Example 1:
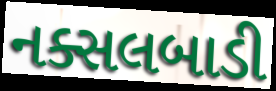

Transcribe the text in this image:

નક્સલબાડી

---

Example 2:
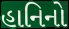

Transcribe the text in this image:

હાનિનો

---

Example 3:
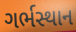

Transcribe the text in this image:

ગર્ભસ્થાન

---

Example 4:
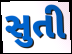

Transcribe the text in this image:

સુતી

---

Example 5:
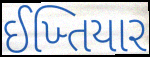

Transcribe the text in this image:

ઈખ્તિયાર